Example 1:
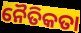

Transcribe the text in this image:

ନୈତିକତା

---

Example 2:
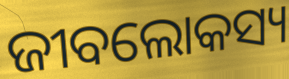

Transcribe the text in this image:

ଜୀବଲୋକସ୍ୟ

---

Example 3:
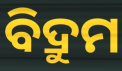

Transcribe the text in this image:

ବିଦ୍ରୁମ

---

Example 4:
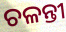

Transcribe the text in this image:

ଚଳନ୍ତୀ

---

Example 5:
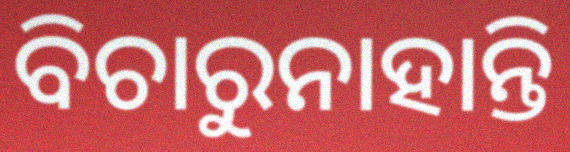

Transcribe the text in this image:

ବିଚାରୁନାହାନ୍ତି